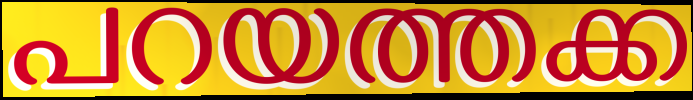
പറയത്തക്ക